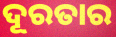
ଦୂରତାର